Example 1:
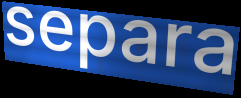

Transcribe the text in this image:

separa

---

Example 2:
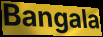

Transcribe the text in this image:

Bangala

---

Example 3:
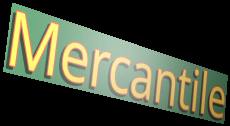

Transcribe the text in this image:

Mercantile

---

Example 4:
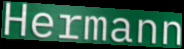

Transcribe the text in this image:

Hermann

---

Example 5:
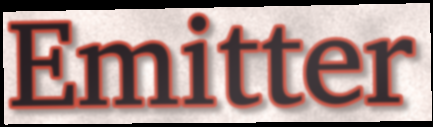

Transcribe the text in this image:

Emitter